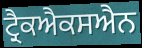
ਟ੍ਰੈਕਐਕਸਐਨ